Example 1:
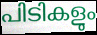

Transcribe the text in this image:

പിടികളും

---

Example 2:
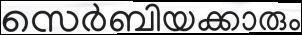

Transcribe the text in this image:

സെർബിയക്കാരും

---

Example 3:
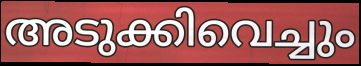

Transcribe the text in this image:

അടുക്കിവെച്ചും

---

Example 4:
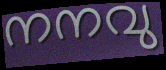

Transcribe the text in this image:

നനവു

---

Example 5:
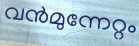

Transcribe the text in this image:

വൻമുന്നേറ്റം